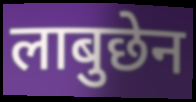
लाबुछेन